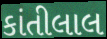
કાંતીલાલ